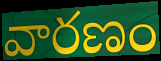
వారణం